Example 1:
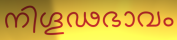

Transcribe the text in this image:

നിഗൂഢഭാവം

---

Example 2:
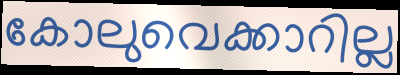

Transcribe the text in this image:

കോലുവെക്കാറില്ല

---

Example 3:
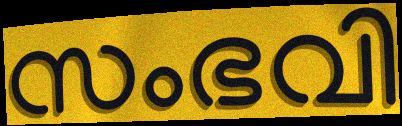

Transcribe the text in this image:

സംഭവി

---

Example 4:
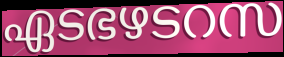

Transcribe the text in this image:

ഏടഭഴടറസ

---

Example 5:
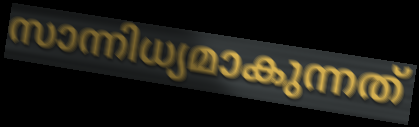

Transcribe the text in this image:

സാന്നിധ്യമാകുന്നത്